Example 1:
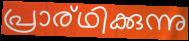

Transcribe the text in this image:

പ്രാര്ഥിക്കുന്നു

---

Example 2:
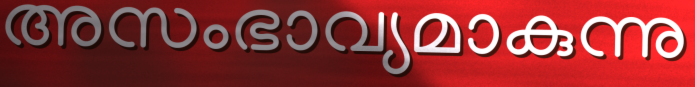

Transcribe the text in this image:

അസംഭാവ്യമാകുന്നു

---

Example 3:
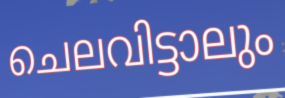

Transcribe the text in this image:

ചെലവിട്ടാലും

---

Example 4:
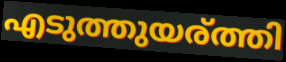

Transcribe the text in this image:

എടുത്തുയര്ത്തി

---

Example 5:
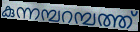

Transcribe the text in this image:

കുന്നമ്പറമ്പത്ത്